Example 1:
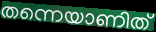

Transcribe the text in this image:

തന്നെയാണിത്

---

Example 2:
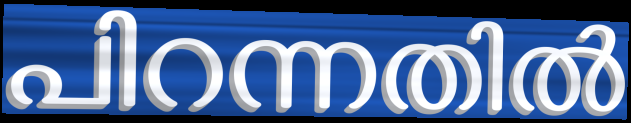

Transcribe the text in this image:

പിറന്നതിൽ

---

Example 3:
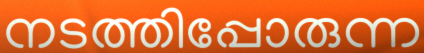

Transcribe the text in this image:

നടത്തിപ്പോരുന്ന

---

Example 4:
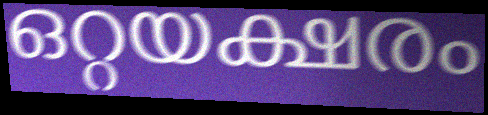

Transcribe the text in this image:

ഒറ്റയക്ഷരം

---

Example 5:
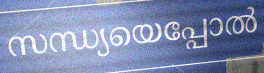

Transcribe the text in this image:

സന്ധ്യയെപ്പോൽ